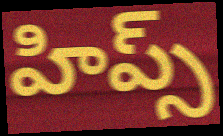
హిప్స్